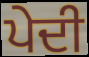
ਪੇਦੀ